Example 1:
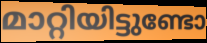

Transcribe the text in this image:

മാറ്റിയിട്ടുണ്ടോ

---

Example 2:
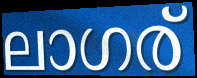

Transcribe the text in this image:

ലാഗര്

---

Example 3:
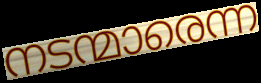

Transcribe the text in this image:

നടന്മാരെന്ന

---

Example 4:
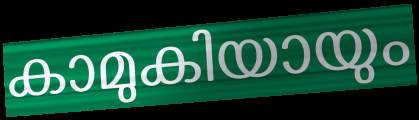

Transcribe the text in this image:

കാമുകിയായും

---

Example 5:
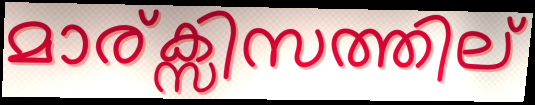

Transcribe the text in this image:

മാര്ക്സിസത്തില്